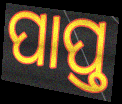
ପାପ୍ତ